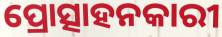
ପ୍ରୋତ୍ସାହନକାରୀ